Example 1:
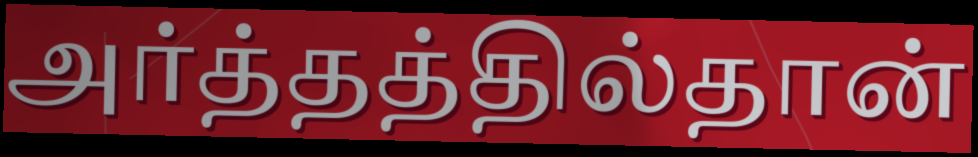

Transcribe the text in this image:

அர்த்தத்தில்தான்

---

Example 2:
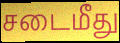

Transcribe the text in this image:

சடைமீது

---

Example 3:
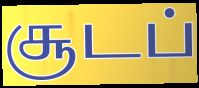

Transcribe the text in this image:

சூடப்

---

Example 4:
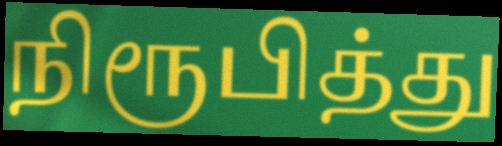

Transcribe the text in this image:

நிரூபித்து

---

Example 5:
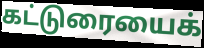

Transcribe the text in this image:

கட்டுரையைக்